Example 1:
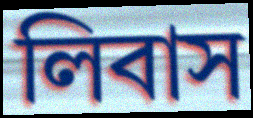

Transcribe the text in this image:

লিবাস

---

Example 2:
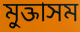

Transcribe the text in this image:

মুক্তাসম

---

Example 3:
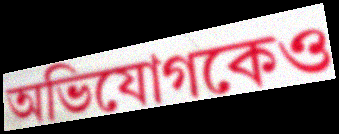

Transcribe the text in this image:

অভিযোগকেও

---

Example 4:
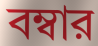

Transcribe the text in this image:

বম্বার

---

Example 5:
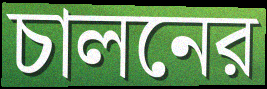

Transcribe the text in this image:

চালনের